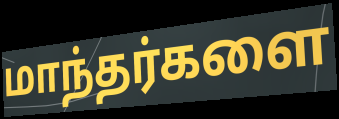
மாந்தர்களை